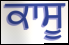
ਕਾਸੂ